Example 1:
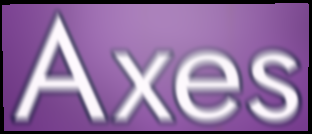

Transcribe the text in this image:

Axes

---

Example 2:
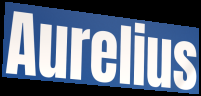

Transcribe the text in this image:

Aurelius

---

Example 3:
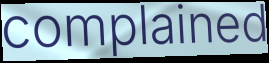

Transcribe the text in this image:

complained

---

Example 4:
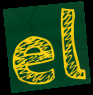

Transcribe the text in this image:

el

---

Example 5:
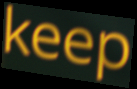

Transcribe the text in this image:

keep